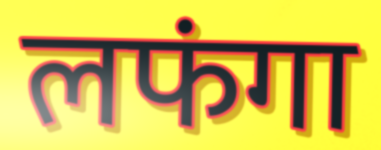
लफंगा